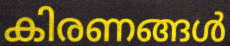
കിരണങ്ങൾ